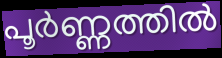
പൂർണ്ണത്തിൽ